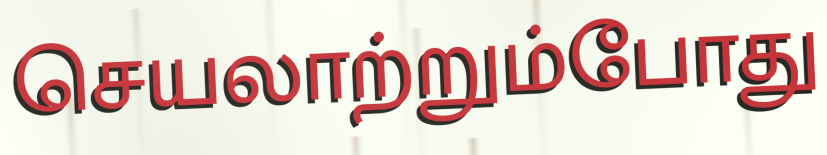
செயலாற்றும்போது